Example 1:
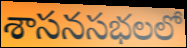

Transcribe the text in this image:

శాసనసభలలో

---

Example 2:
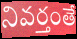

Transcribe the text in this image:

నివర్తంతే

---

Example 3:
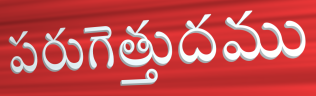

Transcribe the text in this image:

పరుగెత్తుదము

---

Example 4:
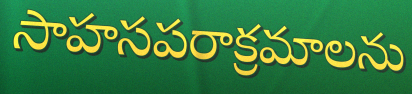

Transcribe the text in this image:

సాహసపరాక్రమాలను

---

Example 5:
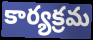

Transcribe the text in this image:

కార్యక్రమ